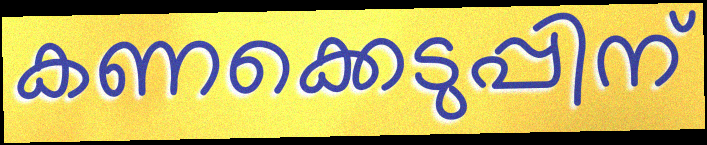
കണക്കെടുപ്പിന്